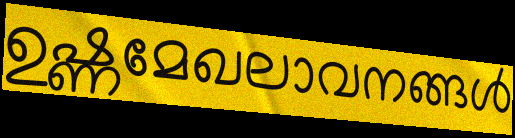
ഉഷ്ണമേഖലാവനങ്ങൾ